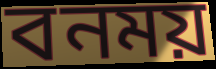
বনময়